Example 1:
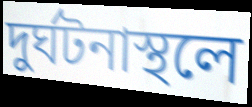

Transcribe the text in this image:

দুর্ঘটনাস্থলে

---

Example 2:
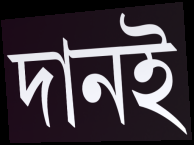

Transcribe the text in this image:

দানই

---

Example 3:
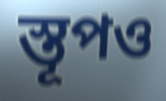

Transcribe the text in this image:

স্তূপও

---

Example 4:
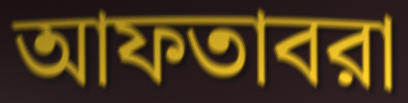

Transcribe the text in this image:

আফতাবরা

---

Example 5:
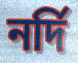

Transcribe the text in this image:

নর্দি